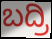
ಬದ್ರಿ